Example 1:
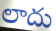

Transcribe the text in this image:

లాదు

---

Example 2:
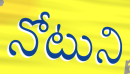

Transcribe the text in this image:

నోటుని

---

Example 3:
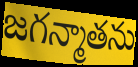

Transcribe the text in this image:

జగన్మాతను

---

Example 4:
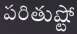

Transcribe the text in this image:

పరితుష్టో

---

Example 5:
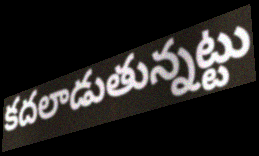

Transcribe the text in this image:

కదలాడుతున్నట్టు